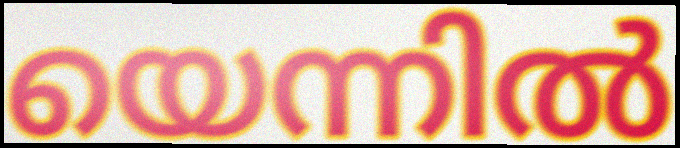
യെന്നിൽ